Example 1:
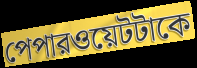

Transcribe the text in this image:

পেপারওয়েটটাকে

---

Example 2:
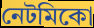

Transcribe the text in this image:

নেটমিকো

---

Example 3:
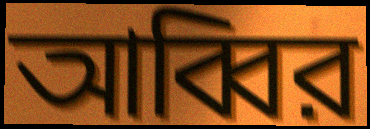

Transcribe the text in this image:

আব্বির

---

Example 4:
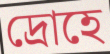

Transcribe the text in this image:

দ্রোহে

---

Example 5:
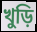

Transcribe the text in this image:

খুড়ি